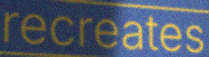
recreates